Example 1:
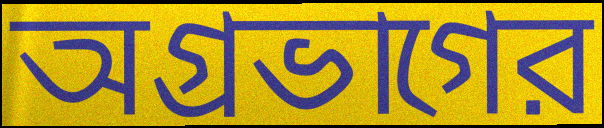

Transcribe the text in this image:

অগ্রভাগের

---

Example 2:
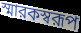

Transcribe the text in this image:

স্মারকস্বরূপ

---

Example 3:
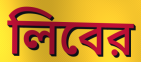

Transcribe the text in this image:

লিবের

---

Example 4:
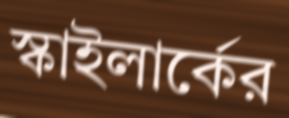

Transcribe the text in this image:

স্কাইলার্কের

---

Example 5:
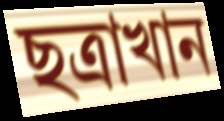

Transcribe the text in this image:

ছত্রাখান